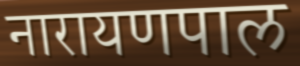
नारायणपाल